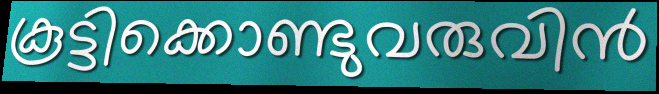
കൂട്ടിക്കൊണ്ടുവരുവിൻ